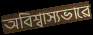
অবিশ্বাস্যভাৱে